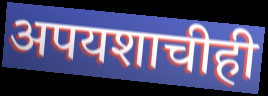
अपयशाचीही